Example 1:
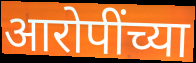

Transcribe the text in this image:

आरोपींच्या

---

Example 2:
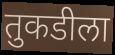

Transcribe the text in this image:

तुकडीला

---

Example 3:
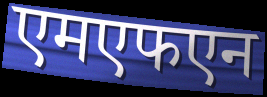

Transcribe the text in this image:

एमएफएन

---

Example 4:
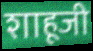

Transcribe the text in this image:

शाहूजी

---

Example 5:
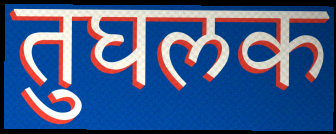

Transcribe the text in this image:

तुघलक